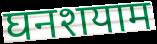
घनशयाम